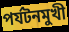
পর্যটনমুখী